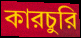
কারচুরি